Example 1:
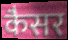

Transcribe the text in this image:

कैसर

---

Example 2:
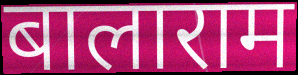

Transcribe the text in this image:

बालाराम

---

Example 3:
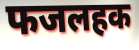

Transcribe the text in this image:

फजलहक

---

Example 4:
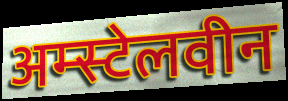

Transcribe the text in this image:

अम्स्टेलवीन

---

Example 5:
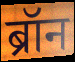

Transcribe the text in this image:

ब्रॉन